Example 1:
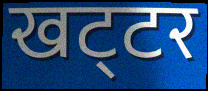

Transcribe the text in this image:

खट्‌टर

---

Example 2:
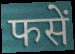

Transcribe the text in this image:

फसें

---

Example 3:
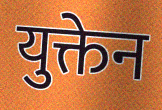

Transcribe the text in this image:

युक्तेन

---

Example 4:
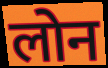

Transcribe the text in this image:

लोन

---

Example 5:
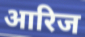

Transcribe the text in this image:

आरिज